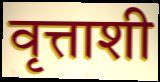
वृत्ताशी